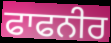
ਫਾਫਨੀਰ